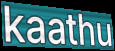
kaathu